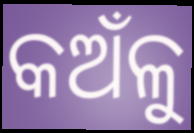
କଅଁଳୁ